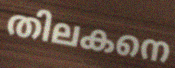
തിലകനെ